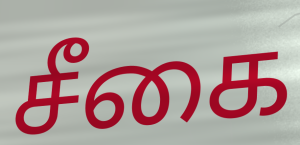
சீகை